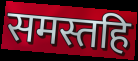
समस्तहि